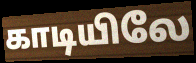
காடியிலே